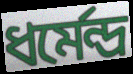
ধৰ্মেন্দ্ৰ